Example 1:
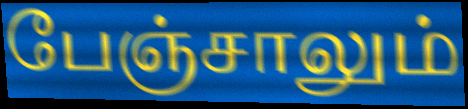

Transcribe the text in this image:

பேஞ்சாலும்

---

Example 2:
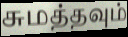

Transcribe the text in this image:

சுமத்தவும்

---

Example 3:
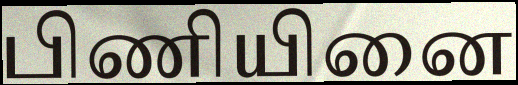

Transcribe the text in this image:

பிணியினை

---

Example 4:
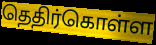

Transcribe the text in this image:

தெதிர்கொள்ள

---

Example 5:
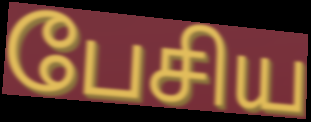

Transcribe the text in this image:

பேசிய